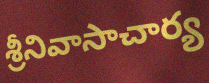
శ్రీనివాసాచార్య